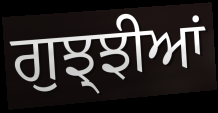
ਗੁਝ੍ਝੀਆਂ